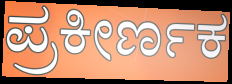
ಪ್ರಕೀರ್ಣಕ